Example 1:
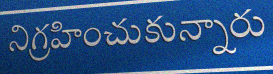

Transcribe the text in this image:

నిగ్రహించుకున్నారు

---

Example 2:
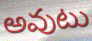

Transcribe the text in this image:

అవుటు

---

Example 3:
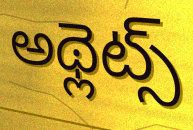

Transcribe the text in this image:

అథ్లెట్స్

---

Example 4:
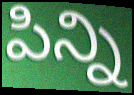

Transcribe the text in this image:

పిన్ని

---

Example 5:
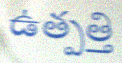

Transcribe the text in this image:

ఉత్పత్తి